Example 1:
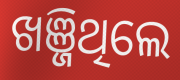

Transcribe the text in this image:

ଖଞ୍ଜିଥିଲେ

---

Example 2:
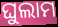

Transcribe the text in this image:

ଘୁଲାମ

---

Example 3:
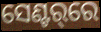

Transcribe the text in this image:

ସେଣ୍ଟର୍‌ରେ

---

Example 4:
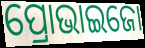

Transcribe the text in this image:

ପ୍ରୋଭାଇଜୋ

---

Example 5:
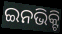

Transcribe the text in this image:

ଇନଭିକ୍ଟି